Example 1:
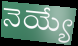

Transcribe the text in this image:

నెయ్యే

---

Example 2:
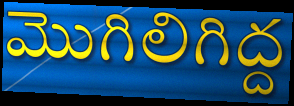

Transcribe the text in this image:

మొగిలిగిద్ద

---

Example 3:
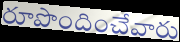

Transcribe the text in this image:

రూపొందించేవారు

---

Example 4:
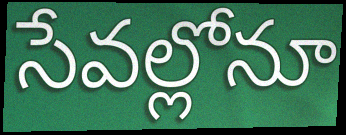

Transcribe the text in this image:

సేవల్లోనూ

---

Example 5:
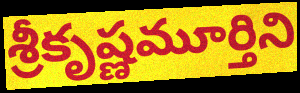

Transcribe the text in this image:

శ్రీకృష్ణమూర్తిని